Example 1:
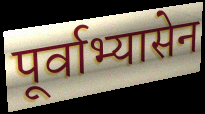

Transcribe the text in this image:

पूर्वाभ्यासेन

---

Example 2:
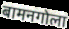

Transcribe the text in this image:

बामनगोला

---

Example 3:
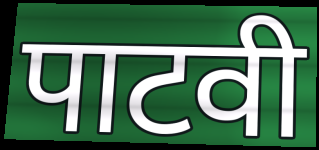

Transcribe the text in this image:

पाटवी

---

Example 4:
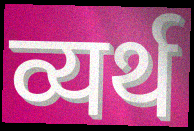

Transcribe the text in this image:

व्‍यर्थ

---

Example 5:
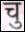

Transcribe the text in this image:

चु